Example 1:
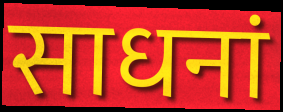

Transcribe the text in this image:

साधनां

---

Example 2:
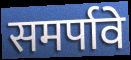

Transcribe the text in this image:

समर्पावे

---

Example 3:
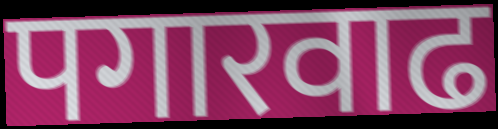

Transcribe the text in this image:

पगारवाढ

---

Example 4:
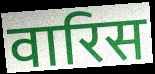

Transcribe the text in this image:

वारिस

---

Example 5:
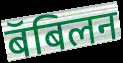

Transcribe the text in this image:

बॅबिलन